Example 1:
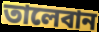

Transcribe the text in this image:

তালেবান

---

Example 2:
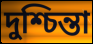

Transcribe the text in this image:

দুশ্চিন্তা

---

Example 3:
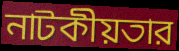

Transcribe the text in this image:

নাটকীয়তার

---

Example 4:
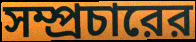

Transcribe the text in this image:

সম্প্রচারের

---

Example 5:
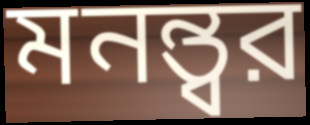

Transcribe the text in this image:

মনন্ত্বর